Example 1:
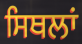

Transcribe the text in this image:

ਸਿਥਲਾਂ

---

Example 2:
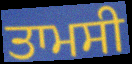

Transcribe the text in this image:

ਤਾਮਸੀ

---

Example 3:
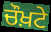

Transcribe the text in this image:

ਚੌਖ਼ਟੇ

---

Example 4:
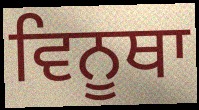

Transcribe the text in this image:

ਵਿਨੂਥਾ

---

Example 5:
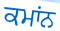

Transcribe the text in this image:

ਕਮਾਂਨ